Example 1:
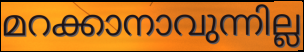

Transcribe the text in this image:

മറക്കാനാവുന്നില്ല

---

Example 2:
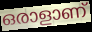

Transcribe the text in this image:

ഒരാളാണ്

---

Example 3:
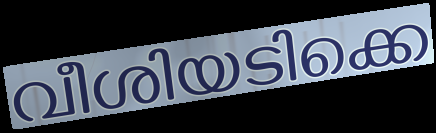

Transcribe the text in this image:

വീശിയടിക്കെ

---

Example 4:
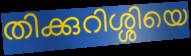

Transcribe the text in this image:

തിക്കുറിശ്ശിയെ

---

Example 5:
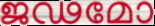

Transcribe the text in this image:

ജഢമോ